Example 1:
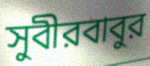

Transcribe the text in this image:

সুবীরবাবুর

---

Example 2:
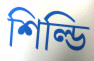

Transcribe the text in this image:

শিল্ডি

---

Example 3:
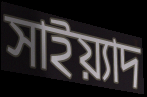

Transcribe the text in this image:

সাইয়্যাদ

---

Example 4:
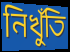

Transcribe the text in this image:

নিখুঁতি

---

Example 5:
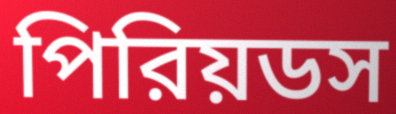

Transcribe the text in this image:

পিরিয়ডস